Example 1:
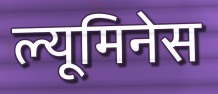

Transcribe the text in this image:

ल्यूमिनेस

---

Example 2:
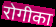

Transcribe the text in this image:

रोगीका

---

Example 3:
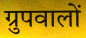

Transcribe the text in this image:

ग्रुपवालों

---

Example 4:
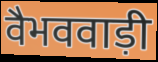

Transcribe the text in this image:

वैभववाड़ी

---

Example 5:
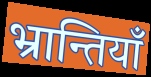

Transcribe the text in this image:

भ्रान्तियाँ